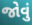
જોવું